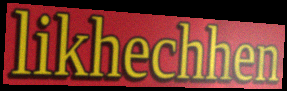
likhechhen